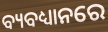
ବ୍ୟବଧ୍ୟାନରେ